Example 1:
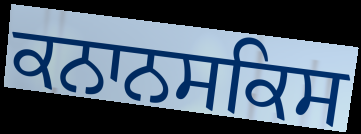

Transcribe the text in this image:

ਕਨਾਨਸਕਿਸ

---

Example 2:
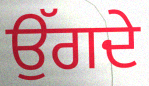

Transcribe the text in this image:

ਉੱਗਦੇ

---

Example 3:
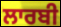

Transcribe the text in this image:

ਲਾਰਬੀ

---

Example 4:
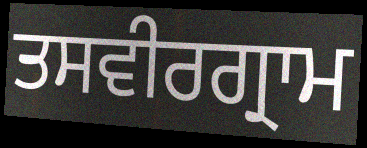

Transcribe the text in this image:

ਤਸਵੀਰਗ੍ਰਾਮ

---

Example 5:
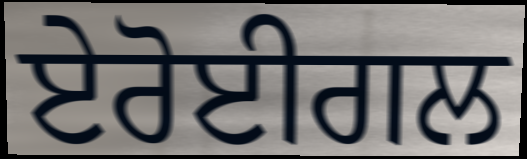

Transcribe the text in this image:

ਏਰੋਈਗਲ